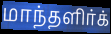
மாந்தளிர்க்